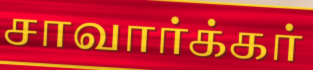
சாவார்க்கர்